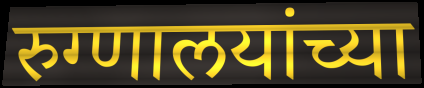
रुग्णालयांच्या